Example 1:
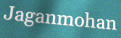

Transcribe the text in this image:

Jaganmohan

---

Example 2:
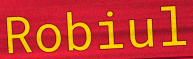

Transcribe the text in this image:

Robiul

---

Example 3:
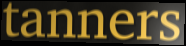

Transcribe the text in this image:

tanners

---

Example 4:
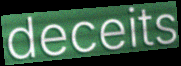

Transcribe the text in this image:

deceits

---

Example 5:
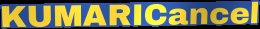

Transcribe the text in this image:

KUMARICancel